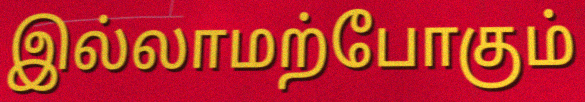
இல்லாமற்போகும்